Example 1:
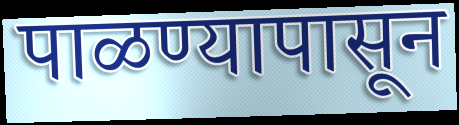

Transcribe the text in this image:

पाळण्यापासून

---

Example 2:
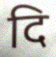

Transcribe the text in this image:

दि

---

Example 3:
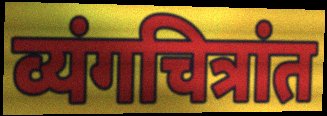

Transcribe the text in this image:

व्यंगचित्रांत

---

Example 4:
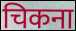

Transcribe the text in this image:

चिकना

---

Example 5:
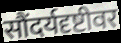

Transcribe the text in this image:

सौंदर्यदृष्टीवर